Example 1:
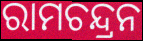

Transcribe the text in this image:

ରାମଚନ୍ଦ୍ରନ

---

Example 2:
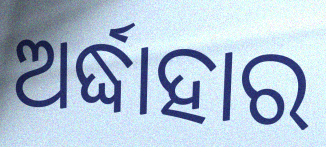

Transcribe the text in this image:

ଅର୍ଦ୍ଧାହାର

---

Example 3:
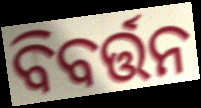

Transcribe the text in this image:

ବିବର୍ତ୍ତନ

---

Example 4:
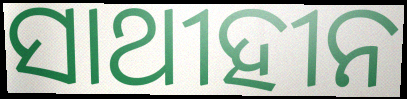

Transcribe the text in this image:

ସାଥୀହୀନ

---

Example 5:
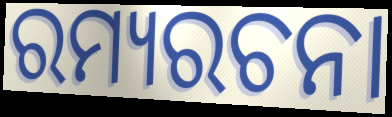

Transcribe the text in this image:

ରମ୍ୟରଚନା